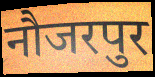
नौजरपुर